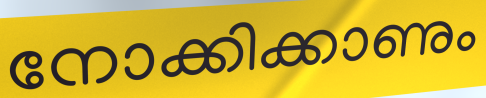
നോക്കിക്കാണും